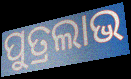
ପୁତ୍ରଲାଭ